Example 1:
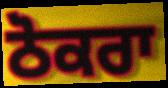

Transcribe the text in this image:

ਠੋਕਰਾ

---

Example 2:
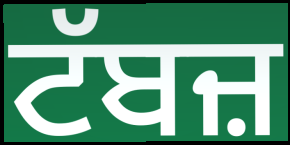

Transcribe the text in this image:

ਟੱਬਜ਼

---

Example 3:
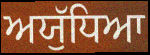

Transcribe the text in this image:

ਅਯੁੱਧਿਆ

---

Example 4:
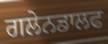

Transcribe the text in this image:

ਗਲੇਨਡਾਲਫ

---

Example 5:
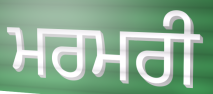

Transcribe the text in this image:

ਮਰਮਰੀ